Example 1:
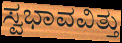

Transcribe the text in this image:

ಸ್ವಭಾವವಿತ್ತು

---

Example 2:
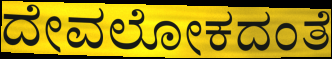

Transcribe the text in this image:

ದೇವಲೋಕದಂತೆ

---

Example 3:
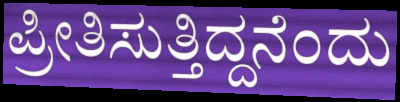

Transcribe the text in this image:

ಪ್ರೀತಿಸುತ್ತಿದ್ದನೆಂದು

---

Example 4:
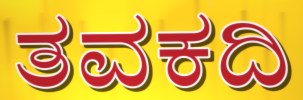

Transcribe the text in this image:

ತವಕದಿ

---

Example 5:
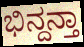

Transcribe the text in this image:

ಭಿನ್ದನ್ತಾ